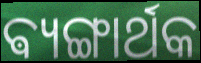
ଵ୍ୟଙ୍ଗାର୍ଥକ